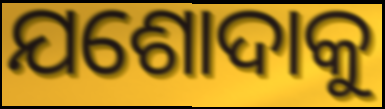
ଯଶୋଦାକୁ